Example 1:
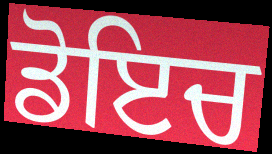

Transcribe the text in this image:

ਡੋਇਚ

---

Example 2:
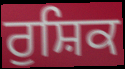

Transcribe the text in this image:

ਰੁਸ਼ਿਕ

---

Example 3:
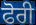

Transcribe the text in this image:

ਫੋਰੀ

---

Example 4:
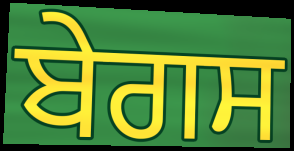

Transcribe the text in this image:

ਬੇਗਸ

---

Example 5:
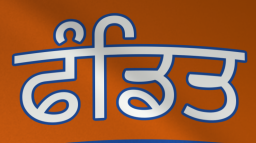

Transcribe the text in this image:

ਫੰਡਿਤ